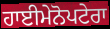
ਹਾਈਮੇਨੋਪਟੇਰਾ